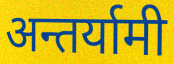
अन्तर्यामी